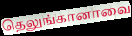
தெலுங்கானாவை